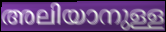
അലിയാനുള്ള